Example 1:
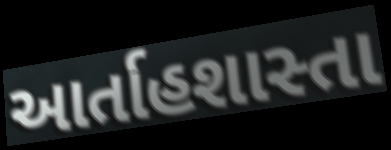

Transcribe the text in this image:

આર્તાહશાસ્તા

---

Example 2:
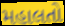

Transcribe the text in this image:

મહાલતો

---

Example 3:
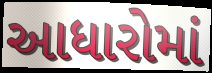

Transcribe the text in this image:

આધારોમાં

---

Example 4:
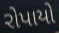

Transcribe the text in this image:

રોપાયો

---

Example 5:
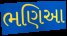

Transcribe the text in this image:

ભણિઆ